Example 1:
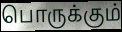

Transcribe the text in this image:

பொருக்கும்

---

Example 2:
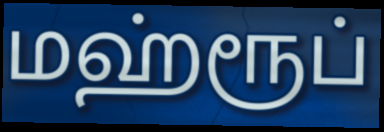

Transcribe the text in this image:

மஹ்ரூப்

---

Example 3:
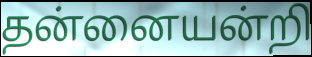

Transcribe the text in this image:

தன்னையன்றி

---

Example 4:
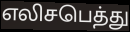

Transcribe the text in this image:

எலிசபெத்து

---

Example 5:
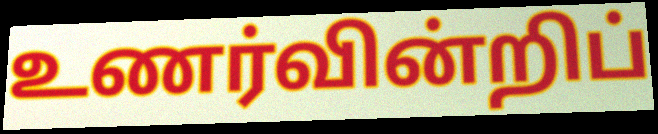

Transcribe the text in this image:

உணர்வின்றிப்